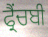
ਫ੍ਰੈਂਚਬੀ